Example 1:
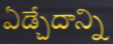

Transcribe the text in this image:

ఏడ్చేదాన్ని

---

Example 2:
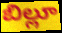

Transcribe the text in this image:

బిల్లూ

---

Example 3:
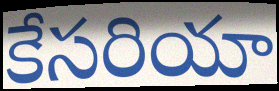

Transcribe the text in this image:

కేసరియా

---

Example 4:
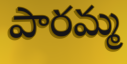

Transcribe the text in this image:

పారమ్మ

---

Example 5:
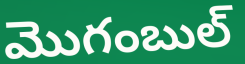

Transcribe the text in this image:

మొగంబుల్